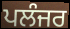
ਪਲੰਜਰ